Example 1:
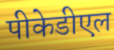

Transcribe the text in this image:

पीकेडीएल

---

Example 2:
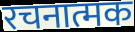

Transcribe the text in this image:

रचनात्मक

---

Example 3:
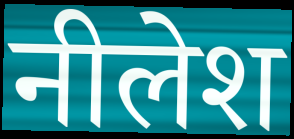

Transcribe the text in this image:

नीलेश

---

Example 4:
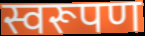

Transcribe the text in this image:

स्वरूपण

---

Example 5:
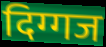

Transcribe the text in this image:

दिग्गज